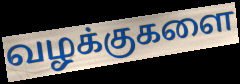
வழக்குகளை